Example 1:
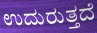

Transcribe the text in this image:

ಉದುರುತ್ತದೆ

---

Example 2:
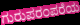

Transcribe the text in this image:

ಗುರುಪರಂಪರೆಯ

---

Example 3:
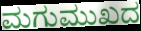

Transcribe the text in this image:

ಮಗುಮುಖದ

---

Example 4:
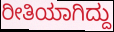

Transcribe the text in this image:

ರೀತಿಯಾಗಿದ್ದು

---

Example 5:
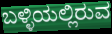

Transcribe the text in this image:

ಬಳ್ಳಿಯಲ್ಲಿರುವ